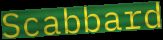
Scabbard